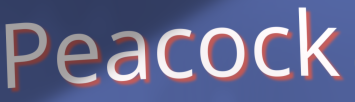
Peacock